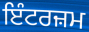
ਇੰਟਰਜ਼ਮ